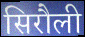
सिरौली